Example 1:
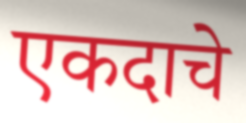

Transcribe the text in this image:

एकदाचे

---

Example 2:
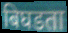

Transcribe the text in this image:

बिघडता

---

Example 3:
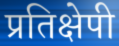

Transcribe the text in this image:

प्रतिक्षेपी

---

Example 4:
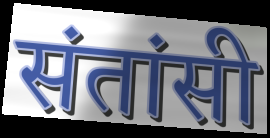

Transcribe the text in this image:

संतांसी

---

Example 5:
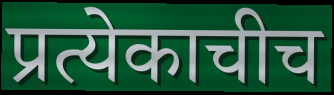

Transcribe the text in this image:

प्रत्येकाचीच